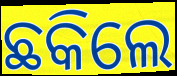
ଛକିଲେ